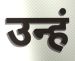
उन्हं